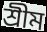
শ্রীম